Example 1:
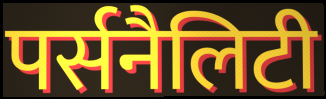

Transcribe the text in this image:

पर्सनैलिटी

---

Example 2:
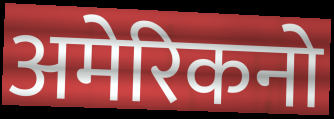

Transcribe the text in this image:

अमेरिकनो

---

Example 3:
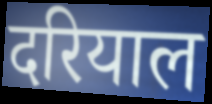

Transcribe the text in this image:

दरियाल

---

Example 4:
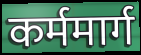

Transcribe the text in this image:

कर्ममार्ग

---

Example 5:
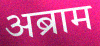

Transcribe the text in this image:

अब्राम